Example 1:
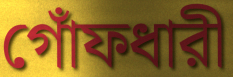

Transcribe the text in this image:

গোঁফধারী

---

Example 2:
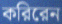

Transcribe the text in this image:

করিরেন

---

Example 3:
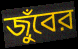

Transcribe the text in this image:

জুঁবের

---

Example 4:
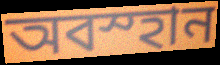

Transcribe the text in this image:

অবস্হান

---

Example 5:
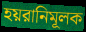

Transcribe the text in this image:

হয়রানিমূলক